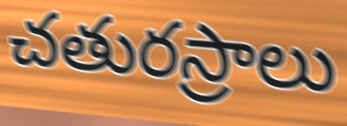
చతురస్రాలు